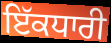
ਇੱਕਧਾਰੀ